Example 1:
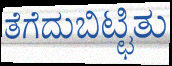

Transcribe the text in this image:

ತೆಗೆದುಬಿಟ್ಟಿತು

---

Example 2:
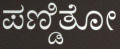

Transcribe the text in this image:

ಪಣ್ಡಿತೋ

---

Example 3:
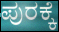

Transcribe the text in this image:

ಪುರಕ್ಕೆ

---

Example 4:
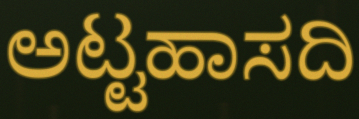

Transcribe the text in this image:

ಅಟ್ಟಹಾಸದಿ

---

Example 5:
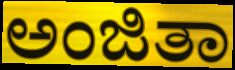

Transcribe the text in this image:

ಅಂಜಿತಾ